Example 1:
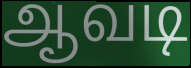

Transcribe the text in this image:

ஆவடி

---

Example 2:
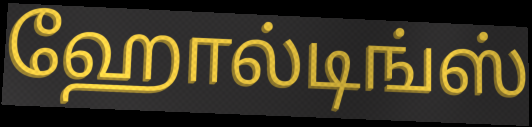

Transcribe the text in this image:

ஹோல்டிங்ஸ்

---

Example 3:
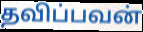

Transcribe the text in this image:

தவிப்பவன்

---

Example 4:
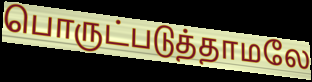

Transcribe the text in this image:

பொருட்படுத்தாமலே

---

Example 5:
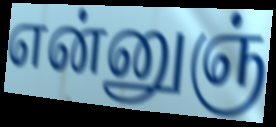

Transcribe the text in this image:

என்னுஞ்